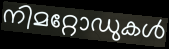
നിമറ്റോഡുകൾ